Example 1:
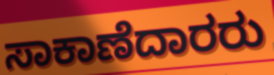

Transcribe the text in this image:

ಸಾಕಾಣೆದಾರರು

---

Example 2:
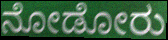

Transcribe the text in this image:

ನೋಡೋರು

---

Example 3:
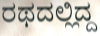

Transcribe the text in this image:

ರಥದಲ್ಲಿದ್ದ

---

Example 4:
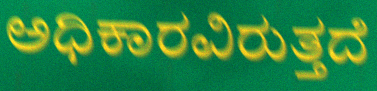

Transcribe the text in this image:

ಅಧಿಕಾರವಿರುತ್ತದೆ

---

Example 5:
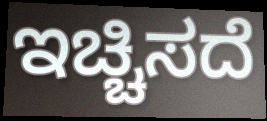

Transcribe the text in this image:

ಇಚ್ಚಿಸದೆ